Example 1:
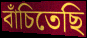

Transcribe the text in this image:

বাঁচিতেছি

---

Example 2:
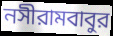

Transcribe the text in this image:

নসীরামবাবুর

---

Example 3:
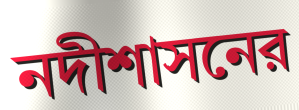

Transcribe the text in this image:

নদীশাসনের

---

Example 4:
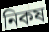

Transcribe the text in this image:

নিকষ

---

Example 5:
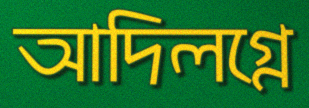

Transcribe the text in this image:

আদিলগ্নে